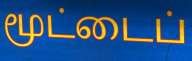
மூட்டைப்